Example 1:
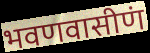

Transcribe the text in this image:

भवणवासीणं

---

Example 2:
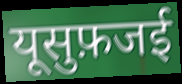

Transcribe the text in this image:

यूसुफ़जई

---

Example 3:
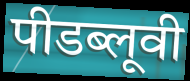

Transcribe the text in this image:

पीडब्लूवी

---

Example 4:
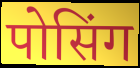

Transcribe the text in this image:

पोसिंग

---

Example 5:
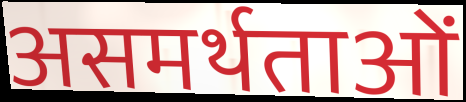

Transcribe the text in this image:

असमर्थताओं